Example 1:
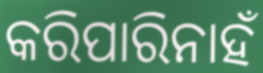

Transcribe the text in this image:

କରିପାରିନାହଁ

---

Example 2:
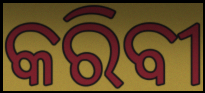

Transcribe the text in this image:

କରିବୀ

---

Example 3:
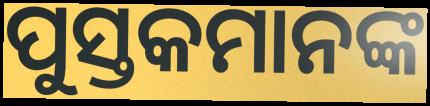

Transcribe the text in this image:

ପୁସ୍ତକମାନଙ୍କ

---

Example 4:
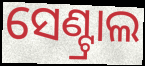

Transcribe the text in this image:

ସେଣ୍ଟ୍ରାଲ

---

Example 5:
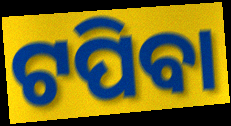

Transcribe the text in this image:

ଟପିବା